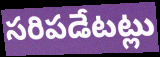
సరిపడేటట్లు